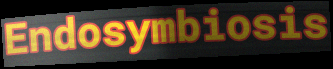
Endosymbiosis